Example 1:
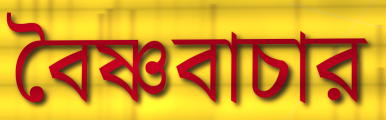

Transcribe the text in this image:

বৈষ্ণবাচার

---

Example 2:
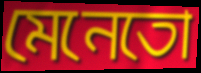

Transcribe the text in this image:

মেনেতো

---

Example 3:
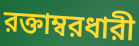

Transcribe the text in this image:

রক্তাম্বরধারী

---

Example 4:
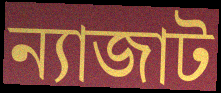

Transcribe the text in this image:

ন্যাজাট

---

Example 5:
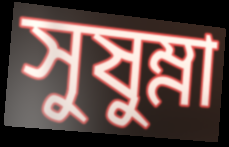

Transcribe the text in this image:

সুষুম্না